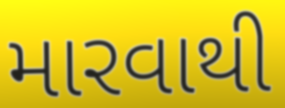
મારવાથી